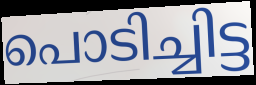
പൊടിച്ചിട്ട